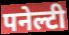
पनेल्टी